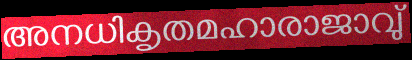
അനധികൃതമഹാരാജാവു്